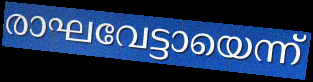
രാഘവേട്ടായെന്ന്